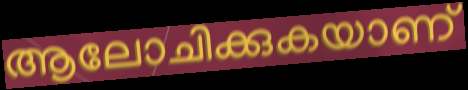
ആലോചിക്കുകയാണ്